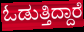
ಓಡುತ್ತಿದ್ದಾರೆ